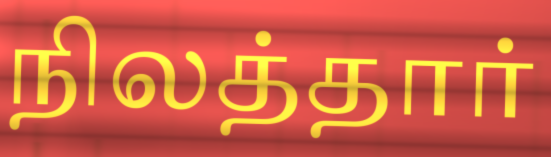
நிலத்தார்